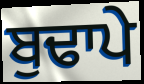
ਬੁਢਾਪੇ